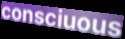
consciuous